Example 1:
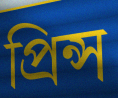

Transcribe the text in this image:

প্রিন্স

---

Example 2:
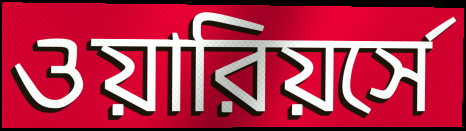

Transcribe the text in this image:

ওয়ারিয়র্সে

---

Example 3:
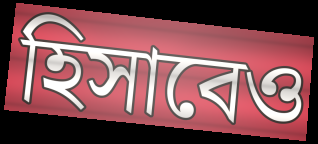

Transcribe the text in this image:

হিসাবেও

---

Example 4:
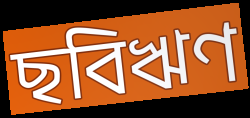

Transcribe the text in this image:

ছবিঋণ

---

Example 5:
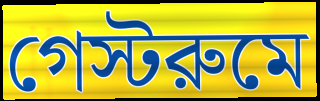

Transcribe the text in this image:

গেস্টরুমে